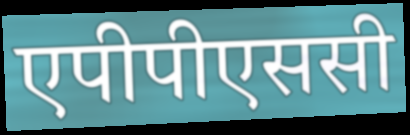
एपीपीएससी